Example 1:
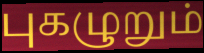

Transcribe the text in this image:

புகழுறும்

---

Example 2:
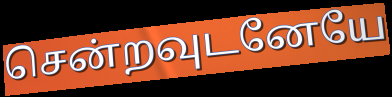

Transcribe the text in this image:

சென்றவுடனேயே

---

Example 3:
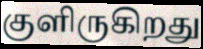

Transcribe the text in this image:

குளிருகிறது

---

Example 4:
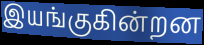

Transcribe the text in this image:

இயங்குகின்றன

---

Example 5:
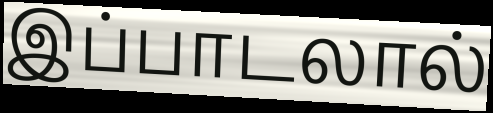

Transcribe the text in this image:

இப்பாடலால்